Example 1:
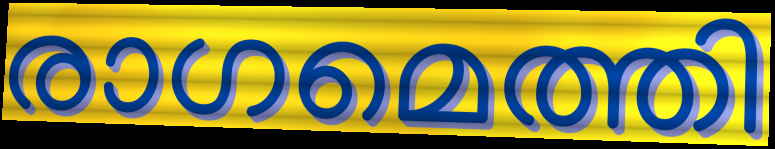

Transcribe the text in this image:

രാഗമെത്തി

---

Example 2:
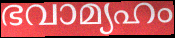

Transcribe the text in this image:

ഭവാമ്യഹം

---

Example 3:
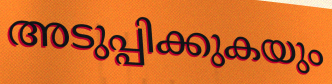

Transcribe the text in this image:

അടുപ്പിക്കുകയും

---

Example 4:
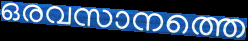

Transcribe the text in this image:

ഒരവസാനത്തെ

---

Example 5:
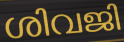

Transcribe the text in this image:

ശിവജി